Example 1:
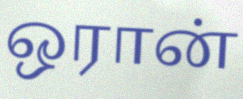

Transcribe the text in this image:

ஒரான்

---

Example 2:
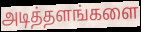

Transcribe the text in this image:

அடித்தளங்களை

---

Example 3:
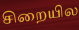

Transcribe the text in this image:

சிறையில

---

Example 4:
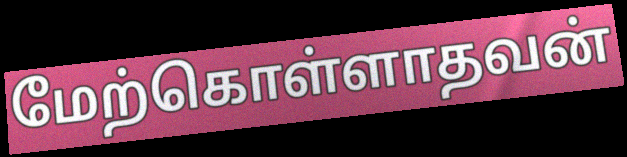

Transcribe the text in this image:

மேற்கொள்ளாதவன்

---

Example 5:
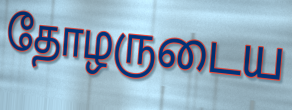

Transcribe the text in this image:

தோழருடைய